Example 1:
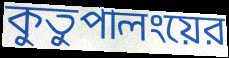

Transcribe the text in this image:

কুতুপালংয়ের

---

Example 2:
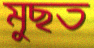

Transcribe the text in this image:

মুছত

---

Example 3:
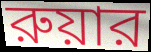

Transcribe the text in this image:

রুয়ার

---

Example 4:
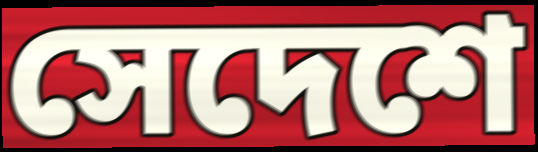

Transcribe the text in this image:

সেদেশে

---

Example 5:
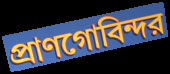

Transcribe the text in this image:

প্রাণগোবিন্দর